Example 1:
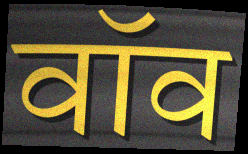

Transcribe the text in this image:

वॉव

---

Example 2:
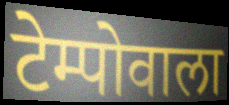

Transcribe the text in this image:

टेम्पोवाला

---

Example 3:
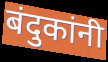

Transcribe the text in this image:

बंदुकांनी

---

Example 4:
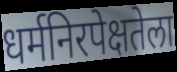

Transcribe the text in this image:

धर्मनिरपेक्षतेला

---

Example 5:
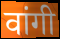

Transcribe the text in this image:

वांगी